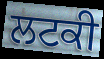
ਲਟਕੀ